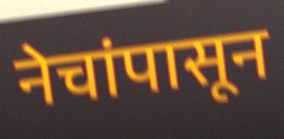
नेचांपासून